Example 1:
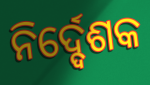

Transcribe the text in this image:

ନିର୍ଦ୍ଦେଶକ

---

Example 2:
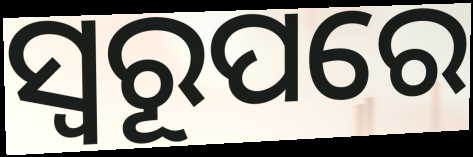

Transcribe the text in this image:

ସ୍ଵରୂପରେ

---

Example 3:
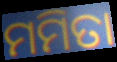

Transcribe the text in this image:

ମମିତା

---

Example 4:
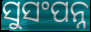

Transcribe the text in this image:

ସୁସଂପନ୍ନ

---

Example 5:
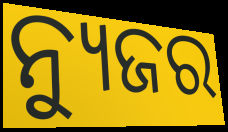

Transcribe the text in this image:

ନ୍ୟୁଜର